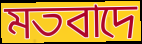
মতবাদে